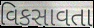
વિકસાવતા